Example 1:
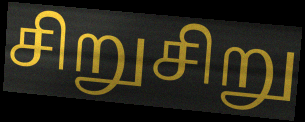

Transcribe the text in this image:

சிறுசிறு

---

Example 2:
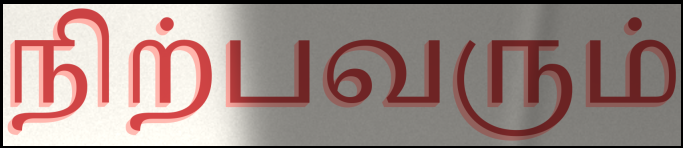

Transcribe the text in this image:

நிற்பவரும்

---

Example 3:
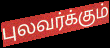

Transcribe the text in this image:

புலவர்க்கும்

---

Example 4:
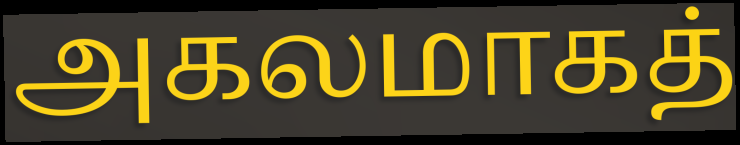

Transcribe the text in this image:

அகலமாகத்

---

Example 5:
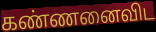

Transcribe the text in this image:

கண்ணனைவிட